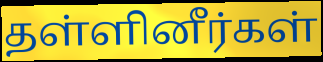
தள்ளினீர்கள்